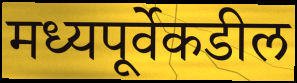
मध्यपूर्वेकडील